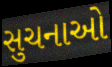
સુચનાઓ